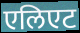
एलिएट